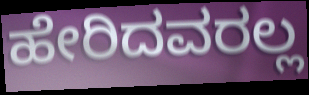
ಹೇರಿದವರಲ್ಲ